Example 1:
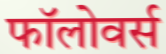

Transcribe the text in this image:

फॉलोवर्स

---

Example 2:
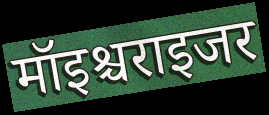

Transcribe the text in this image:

मॉइश्चराइजर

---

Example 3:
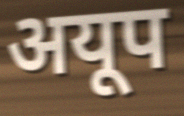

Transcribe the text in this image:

अयूप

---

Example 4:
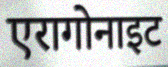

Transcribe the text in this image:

एरागोनाइट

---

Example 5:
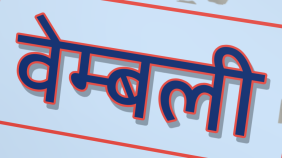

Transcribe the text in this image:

वेम्बली